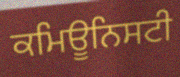
ਕਮਿਊਨਿਸਟੀ